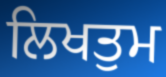
ਲਿਖਤੁਮ